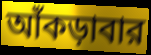
আঁকড়াবার